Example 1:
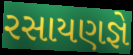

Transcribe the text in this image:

રસાયણજ્ઞે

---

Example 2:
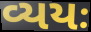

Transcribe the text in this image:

વ્યયઃ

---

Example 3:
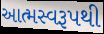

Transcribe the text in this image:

આત્મસ્વરૂપથી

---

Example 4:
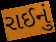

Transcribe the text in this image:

રાઈનું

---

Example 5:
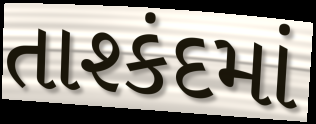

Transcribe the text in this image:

તાશ્કંદમાં